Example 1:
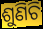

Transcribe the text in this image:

ଶୁଣିଚି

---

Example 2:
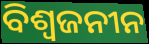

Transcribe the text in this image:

ବିଶ୍ୱଜନୀନ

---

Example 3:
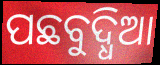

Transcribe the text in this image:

ପଛବୁଦ୍ଧିଆ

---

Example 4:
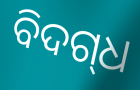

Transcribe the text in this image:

ବିଦଗ୍‌ଧ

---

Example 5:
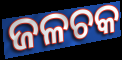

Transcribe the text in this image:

ଜଳଚକ